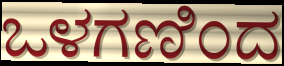
ಒಳಗಣಿಂದ